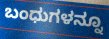
ಬಂಧುಗಳನ್ನೂ